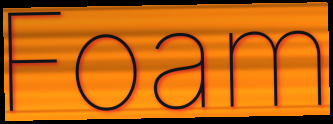
Foam